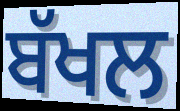
ਬੱਖਲ